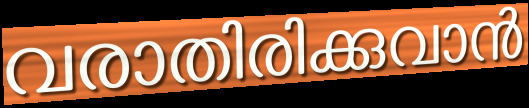
വരാതിരിക്കുവാൻ